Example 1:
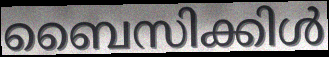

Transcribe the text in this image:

ബൈസിക്കിൾ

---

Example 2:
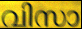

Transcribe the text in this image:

വിസാ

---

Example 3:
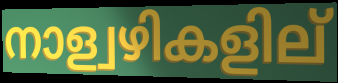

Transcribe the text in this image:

നാള്വഴികളില്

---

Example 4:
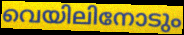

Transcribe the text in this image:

വെയിലിനോടും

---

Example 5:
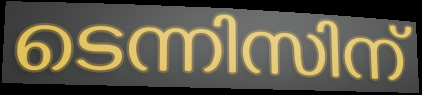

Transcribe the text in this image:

ടെന്നിസിന്